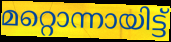
മറ്റൊന്നായിട്ട്